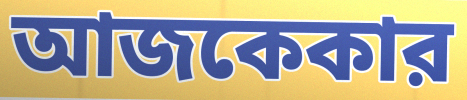
আজকেকার